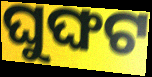
ଘୁଙ୍ଘଟ